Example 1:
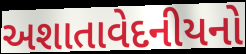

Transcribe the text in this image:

અશાતાવેદનીયનો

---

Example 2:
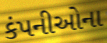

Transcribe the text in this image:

કંપનીઓના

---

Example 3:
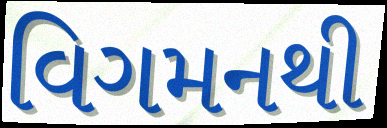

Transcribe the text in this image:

વિગમનથી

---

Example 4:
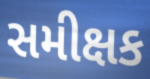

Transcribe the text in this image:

સમીક્ષક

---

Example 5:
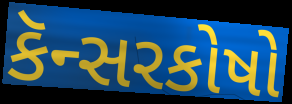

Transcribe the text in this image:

કૅન્સરકોષો